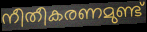
നീതീകരണമുണ്ട്